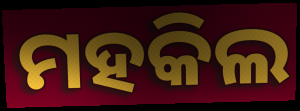
ମହକିଲ